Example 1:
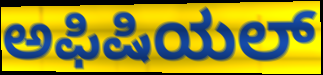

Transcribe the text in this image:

ಅಫಿಷಿಯಲ್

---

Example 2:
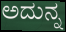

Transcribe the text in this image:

ಅದುನ್ನ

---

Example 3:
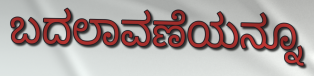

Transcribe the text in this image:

ಬದಲಾವಣೆಯನ್ನೂ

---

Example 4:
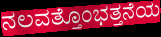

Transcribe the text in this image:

ನಲವತ್ತೊಂಭತ್ತನೆಯ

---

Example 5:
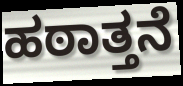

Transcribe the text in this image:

ಹಠಾತ್ತನೆ